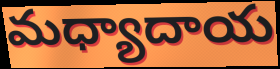
మధ్యాదాయ